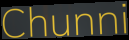
Chunni